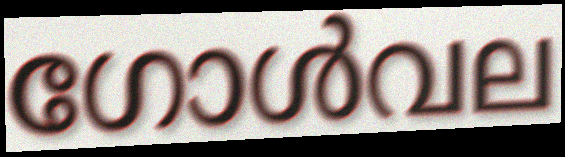
ഗോൾവല